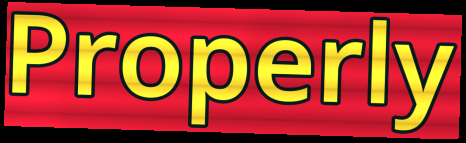
Properly